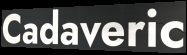
Cadaveric